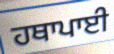
ਹਥਾਪਾਈ